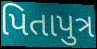
પિતાપુત્ર